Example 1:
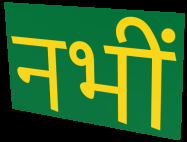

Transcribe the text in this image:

नभीं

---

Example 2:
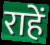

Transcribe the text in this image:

राहें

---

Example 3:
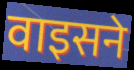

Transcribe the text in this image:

वाइसने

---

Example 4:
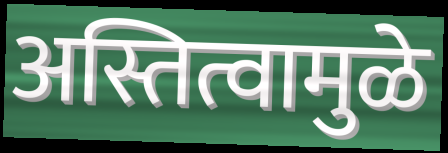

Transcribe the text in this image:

अस्तित्वामुळे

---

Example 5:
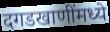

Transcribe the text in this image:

दगडखाणींमध्ये